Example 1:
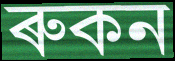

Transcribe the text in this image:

ৰুকন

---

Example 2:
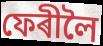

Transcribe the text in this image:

ফেৰীলৈ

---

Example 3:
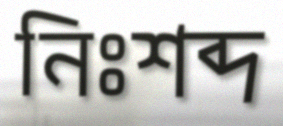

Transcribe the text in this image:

নিঃশব্দ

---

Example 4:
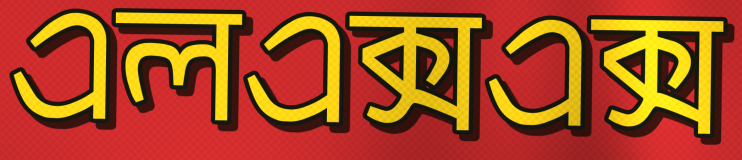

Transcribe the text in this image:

এলএক্সএক্স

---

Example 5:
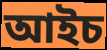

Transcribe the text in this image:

আইচ